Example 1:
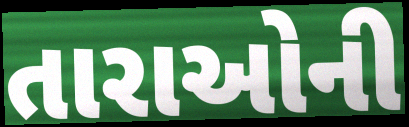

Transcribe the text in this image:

તારાઓની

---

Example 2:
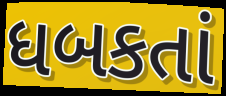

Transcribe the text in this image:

ધબકતાં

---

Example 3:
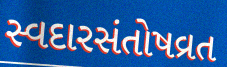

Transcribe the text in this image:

સ્વદારસંતોષવ્રત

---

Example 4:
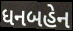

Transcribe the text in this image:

ધનબહેન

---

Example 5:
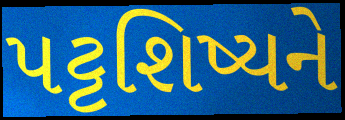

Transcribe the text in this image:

પટ્ટશિષ્યને